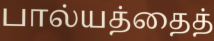
பால்யத்தைத்